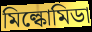
মিল্কোমিডা